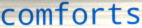
comforts